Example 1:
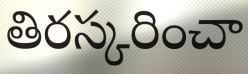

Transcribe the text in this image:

తిరస్కరించా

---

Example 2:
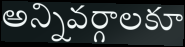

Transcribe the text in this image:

అన్నివర్గాలకూ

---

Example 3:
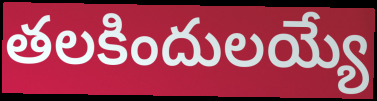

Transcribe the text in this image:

తలకిందులయ్యే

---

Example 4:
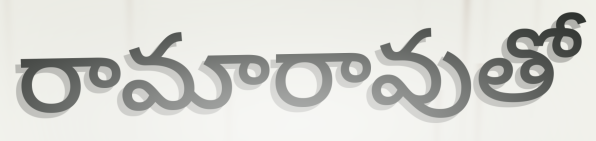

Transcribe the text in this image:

రామారావుతో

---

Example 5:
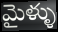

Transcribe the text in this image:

మైళ్ళు